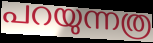
പറയുന്നത്ര